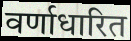
वर्णाधारित